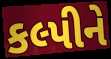
કલ્પીને